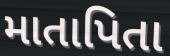
માતાપિતા